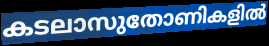
കടലാസുതോണികളിൽ